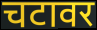
चटावर